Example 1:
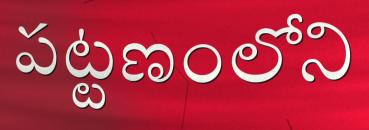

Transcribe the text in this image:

పట్టణంలోని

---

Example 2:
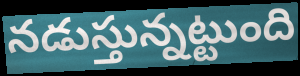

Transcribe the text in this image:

నడుస్తున్నట్టుంది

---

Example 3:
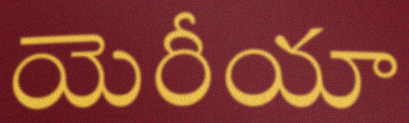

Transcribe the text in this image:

యెరీయా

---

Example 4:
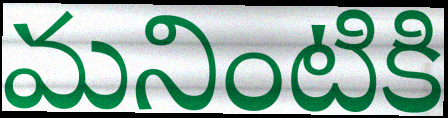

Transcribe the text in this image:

మనింటికి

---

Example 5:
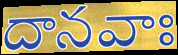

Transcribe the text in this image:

దానవాః